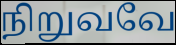
நிறுவவே